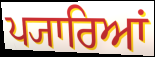
ਪ੍ਯਾਰਿਆਂ